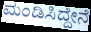
ಮಂಡಿಸಿದ್ದೇನೆ